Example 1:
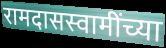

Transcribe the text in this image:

रामदासस्वामींच्या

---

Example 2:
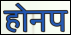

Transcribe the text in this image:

होनप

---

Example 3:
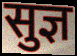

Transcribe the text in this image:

सुज्ञ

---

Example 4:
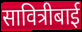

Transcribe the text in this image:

सावित्रीबाई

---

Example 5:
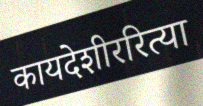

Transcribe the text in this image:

कायदेशीररित्या